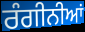
ਰੰਗੀਨੀਆਂ